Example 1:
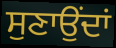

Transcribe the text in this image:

ਸੁਣਾਉਂਦਾਂ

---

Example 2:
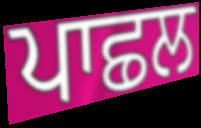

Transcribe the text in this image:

ਪਾਛਲ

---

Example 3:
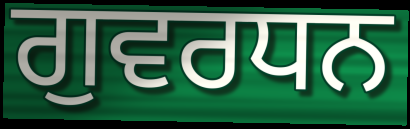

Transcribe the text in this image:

ਗੁਵਰਧਨ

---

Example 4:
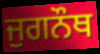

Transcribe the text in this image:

ਜੁਗਨੌਥ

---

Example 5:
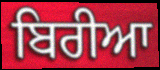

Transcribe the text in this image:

ਬਿਰੀਆ